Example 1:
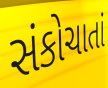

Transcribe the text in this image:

સંકોચાતાં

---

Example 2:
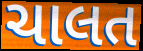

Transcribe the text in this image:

ચાલત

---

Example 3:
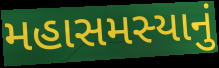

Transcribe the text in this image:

મહાસમસ્યાનું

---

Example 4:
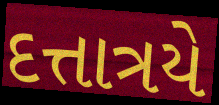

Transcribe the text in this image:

દત્તાત્રયે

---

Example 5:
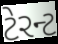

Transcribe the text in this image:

ટેરન્ટ